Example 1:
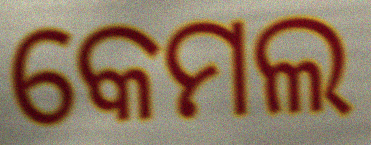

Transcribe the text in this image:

କେମଲ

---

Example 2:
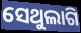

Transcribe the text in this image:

ସେଥୁଲାଗି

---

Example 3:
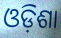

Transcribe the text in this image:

ଓଡ଼ିଶା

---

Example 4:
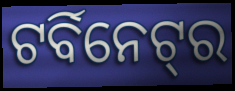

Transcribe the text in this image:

ଟର୍ବିନେଟ୍‌ର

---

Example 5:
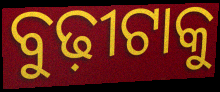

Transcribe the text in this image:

ବୁଢ଼ୀଟାକୁ